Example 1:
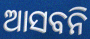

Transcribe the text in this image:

ଆସବନି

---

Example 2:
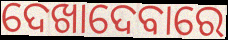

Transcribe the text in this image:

ଦେଖାଦେବାରେ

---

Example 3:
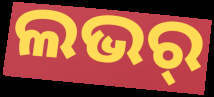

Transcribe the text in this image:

ଲଭର୍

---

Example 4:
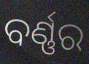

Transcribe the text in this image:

ବର୍ଣ୍ଣର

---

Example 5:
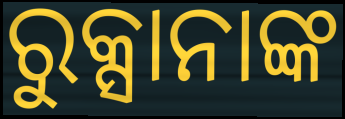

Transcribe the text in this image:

ରୁକ୍ସାନାଙ୍କ